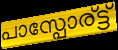
പാസ്പോര്ട്ട്